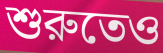
শুরুতেও